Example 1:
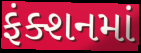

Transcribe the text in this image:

ફંક્શનમાં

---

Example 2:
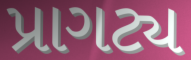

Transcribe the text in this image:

પ્રાગટ્ય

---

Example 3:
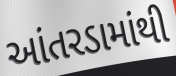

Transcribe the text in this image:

આંતરડામાંથી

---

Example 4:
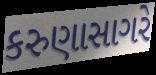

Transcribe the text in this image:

કરુણાસાગરે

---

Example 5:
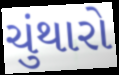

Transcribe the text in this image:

ચુંથારો